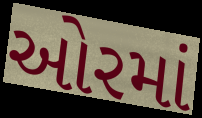
ઓરમાં